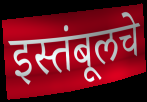
इस्तंबूलचे